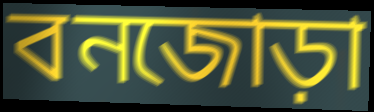
বনজোড়া